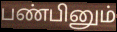
பண்பினும்